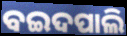
ବଇଦପାଲି